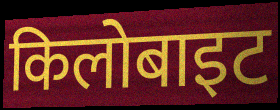
किलोबाइट